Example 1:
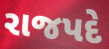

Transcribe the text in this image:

રાજપદે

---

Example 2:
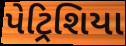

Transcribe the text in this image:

પેટ્રિશિયા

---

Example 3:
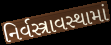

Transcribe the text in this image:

નિર્વસ્ત્રાવસ્થામાં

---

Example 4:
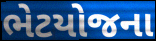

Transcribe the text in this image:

ભેટયોજના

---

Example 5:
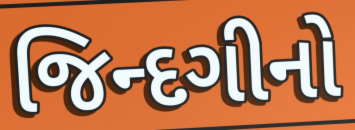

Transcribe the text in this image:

જિન્દગીનો